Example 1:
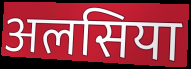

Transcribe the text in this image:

अलसिया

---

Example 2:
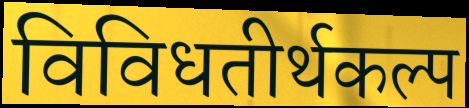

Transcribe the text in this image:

विविधतीर्थकल्प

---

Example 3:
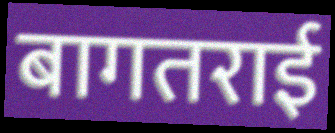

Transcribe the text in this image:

बागतराई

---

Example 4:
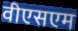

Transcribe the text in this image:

वीएसएम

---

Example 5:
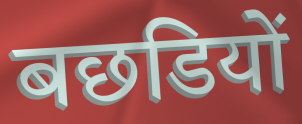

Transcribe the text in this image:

बछडियों